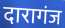
दारागंज